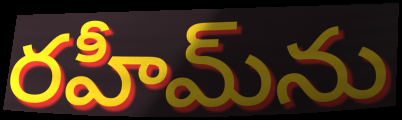
రహీమ్‌ను